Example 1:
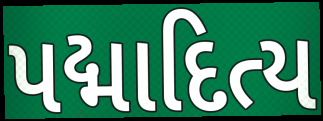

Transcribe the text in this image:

પદ્માદિત્ય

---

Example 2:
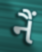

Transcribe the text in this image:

નૈં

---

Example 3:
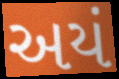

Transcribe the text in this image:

અયં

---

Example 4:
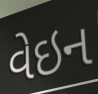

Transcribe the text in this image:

વેઇન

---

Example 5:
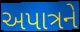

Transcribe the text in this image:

અપાત્રને